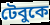
টেবুকে